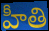
హీతి